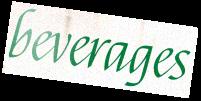
beverages